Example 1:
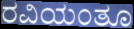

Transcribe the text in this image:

ರವಿಯಂತೂ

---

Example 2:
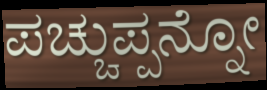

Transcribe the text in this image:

ಪಚ್ಚುಪ್ಪನ್ನೋ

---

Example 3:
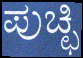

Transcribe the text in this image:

ಪುಚ್ಛಿ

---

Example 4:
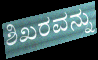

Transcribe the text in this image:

ಶಿಖರವನ್ನು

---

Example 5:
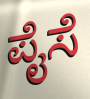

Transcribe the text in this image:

ಪೈಸೆ